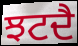
ਝਟਦੈ